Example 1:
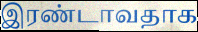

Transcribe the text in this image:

இரண்டாவதாக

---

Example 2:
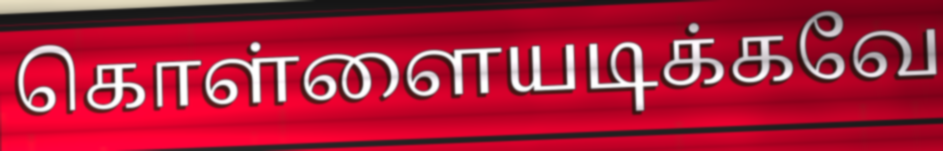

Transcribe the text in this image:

கொள்ளையடிக்கவே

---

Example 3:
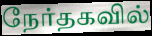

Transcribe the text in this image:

நேர்தகவில்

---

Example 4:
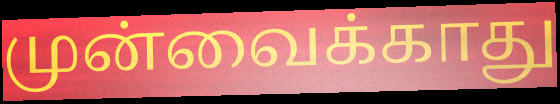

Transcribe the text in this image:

முன்வைக்காது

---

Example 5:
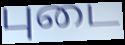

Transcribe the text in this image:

புடை